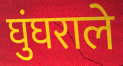
घुंघराले